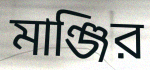
মাঞ্জির